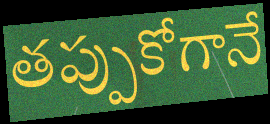
తప్పుకోగానే